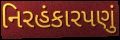
નિરહંકારપણું